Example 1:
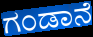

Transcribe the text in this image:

ಗಂಡಾನೆ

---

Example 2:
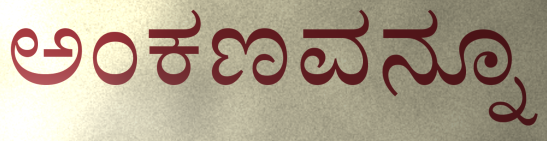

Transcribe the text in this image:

ಅಂಕಣವನ್ನೂ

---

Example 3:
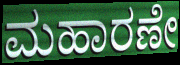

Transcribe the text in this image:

ಮಹಾರಣೇ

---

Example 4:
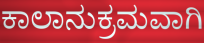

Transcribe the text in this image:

ಕಾಲಾನುಕ್ರಮವಾಗಿ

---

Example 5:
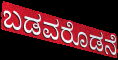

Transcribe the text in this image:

ಬಡವರೊಡನೆ